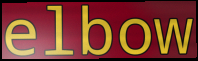
elbow